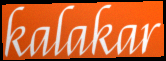
kalakar